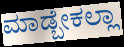
ಮಾಡ್ಬೇಕಲ್ಲಾ